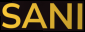
SANI